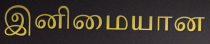
இனிமையான